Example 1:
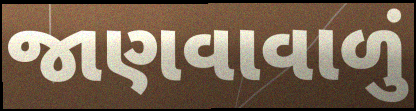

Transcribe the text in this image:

જાણવાવાળું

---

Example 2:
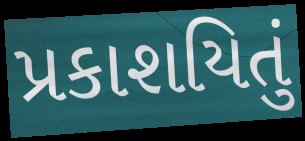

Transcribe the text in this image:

પ્રકાશયિતું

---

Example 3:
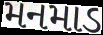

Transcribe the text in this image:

મનમાડ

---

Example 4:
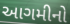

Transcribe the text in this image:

આગમીનો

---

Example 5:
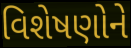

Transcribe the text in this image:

વિશેષણોને